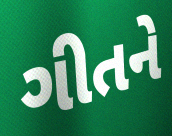
ગીતને